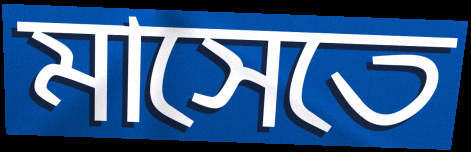
মাসেতে